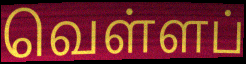
வெள்ளப்